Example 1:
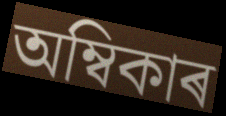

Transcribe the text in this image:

অম্বিকাৰ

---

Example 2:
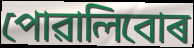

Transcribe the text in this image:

পোৱালিবোৰ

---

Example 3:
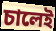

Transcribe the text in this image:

চালেই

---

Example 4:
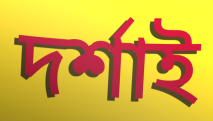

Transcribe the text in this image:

দৰ্শাই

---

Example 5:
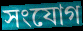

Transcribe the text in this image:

সংযোগ